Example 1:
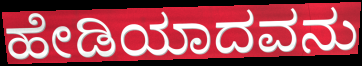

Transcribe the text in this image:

ಹೇಡಿಯಾದವನು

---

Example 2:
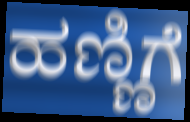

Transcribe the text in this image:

ಹಣ್ಣಿಗೆ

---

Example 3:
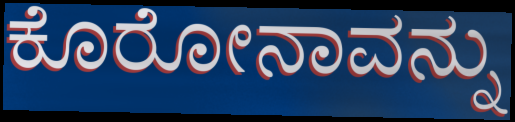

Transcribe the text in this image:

ಕೊರೋನಾವನ್ನು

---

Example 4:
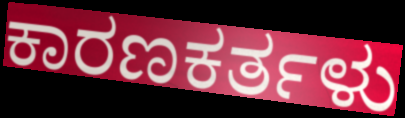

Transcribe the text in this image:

ಕಾರಣಕರ್ತಳು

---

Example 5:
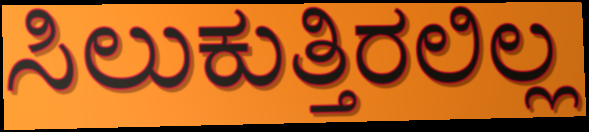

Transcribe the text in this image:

ಸಿಲುಕುತ್ತಿರಲಿಲ್ಲ